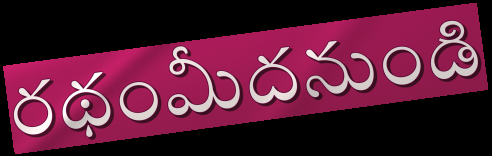
రథంమీదనుండి